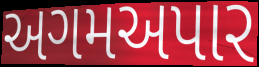
અગમઅપાર